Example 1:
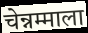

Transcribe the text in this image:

चेन्नम्माला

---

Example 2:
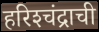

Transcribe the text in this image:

हरिश्‍चंद्राची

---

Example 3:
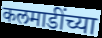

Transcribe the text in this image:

कलमाडींच्या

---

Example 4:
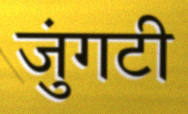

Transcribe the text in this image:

जुंगटी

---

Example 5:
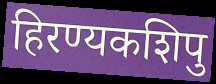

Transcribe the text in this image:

हिरण्यकशिपु